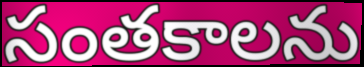
సంతకాలను